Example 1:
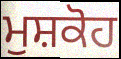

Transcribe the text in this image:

ਮੁਸ਼ਕੋਹ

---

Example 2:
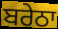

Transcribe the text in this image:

ਬਰੇਠਾ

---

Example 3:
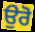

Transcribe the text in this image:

ਉਰੋ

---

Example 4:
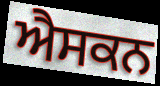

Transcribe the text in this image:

ਐਸਕਨ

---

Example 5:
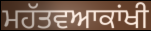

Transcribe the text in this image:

ਮਹੱਤਵਆਕਾਂਖੀ